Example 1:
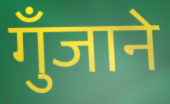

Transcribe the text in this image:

गुँजाने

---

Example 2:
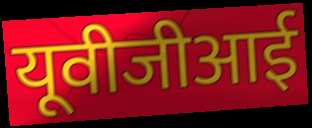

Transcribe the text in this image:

यूवीजीआई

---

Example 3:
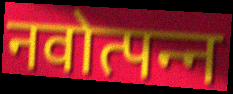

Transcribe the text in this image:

नवोत्पन्न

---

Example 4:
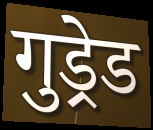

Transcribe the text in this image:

गुड्रेड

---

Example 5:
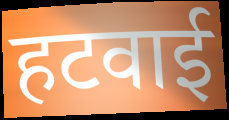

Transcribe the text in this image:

हटवाई